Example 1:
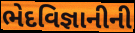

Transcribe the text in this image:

ભેદવિજ્ઞાનીની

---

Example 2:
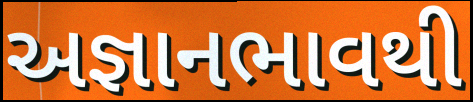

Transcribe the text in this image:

અજ્ઞાનભાવથી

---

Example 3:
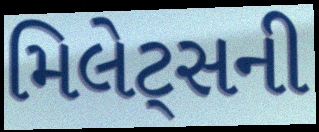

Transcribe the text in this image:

મિલેટ્સની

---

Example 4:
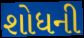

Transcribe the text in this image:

શોધની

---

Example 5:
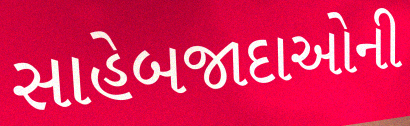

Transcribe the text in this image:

સાહેબજાદાઓની